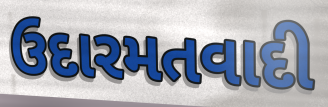
ઉદારમતવાદી